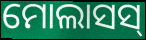
ମୋଲାସସ୍